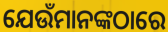
ଯେଉଁମାନଙ୍କଠାରେ